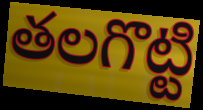
తలగొట్టి